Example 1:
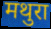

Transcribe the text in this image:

मथुरा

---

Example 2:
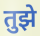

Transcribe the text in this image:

तुझे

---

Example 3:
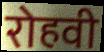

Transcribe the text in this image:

रोहवी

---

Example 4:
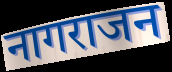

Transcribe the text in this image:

नागराजन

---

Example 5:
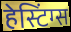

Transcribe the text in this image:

हेस्टिंग्स